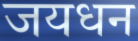
जयधन